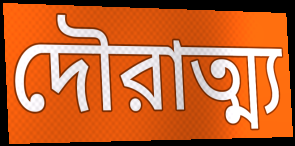
দৌরাত্ম্য